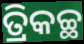
ତ୍ରିକଚ୍ଛ